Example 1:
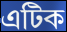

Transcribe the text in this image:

এটিক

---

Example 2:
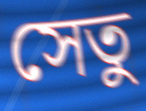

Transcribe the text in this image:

সেতু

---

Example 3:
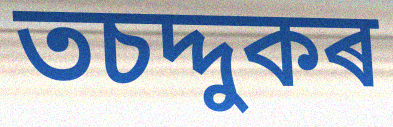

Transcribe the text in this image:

তচদ্দুকৰ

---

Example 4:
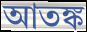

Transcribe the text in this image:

আতঙ্ক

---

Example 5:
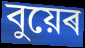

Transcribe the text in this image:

বুয়েৰ